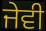
ਜੇਵੀ